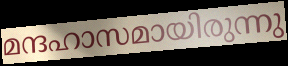
മന്ദഹാസമായിരുന്നു